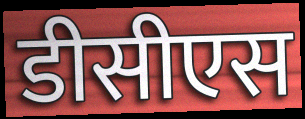
डीसीएस